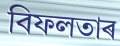
বিফলতাৰ